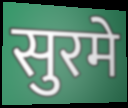
सुरमे